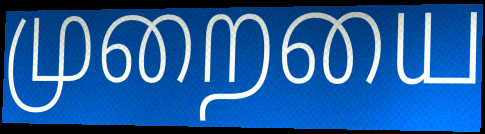
முறையை